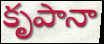
కృపానా